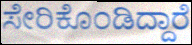
ಸೇರಿಕೊಂಡಿದ್ದಾರೆ